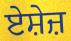
ਏਸ਼ੇਜ਼